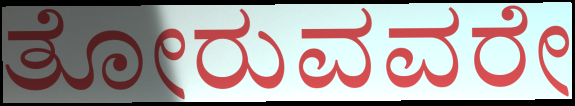
ತೋರುವವರೇ